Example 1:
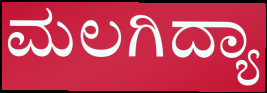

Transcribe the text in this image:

ಮಲಗಿದ್ಯಾ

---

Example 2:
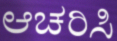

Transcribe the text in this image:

ಆಚರಿಸಿ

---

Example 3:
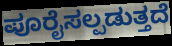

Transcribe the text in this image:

ಪೂರೈಸಲ್ಪಡುತ್ತದೆ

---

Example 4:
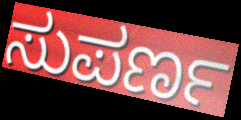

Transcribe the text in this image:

ಸುಪರ್ಣ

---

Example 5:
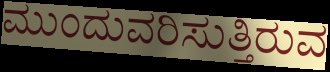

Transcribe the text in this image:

ಮುಂದುವರಿಸುತ್ತಿರುವ